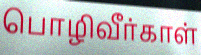
பொழிவீர்காள்